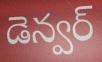
డెన్వర్